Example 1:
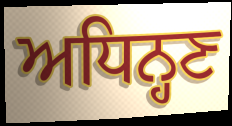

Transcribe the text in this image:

ਅਧਿਨ੍ਹਣ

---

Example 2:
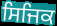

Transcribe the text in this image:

ਸਿਜਿਕ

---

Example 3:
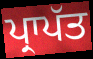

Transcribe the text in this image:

ਪ੍ਰਾਪੱਤ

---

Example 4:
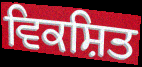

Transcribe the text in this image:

ਵਿਕਸ਼ਿਤ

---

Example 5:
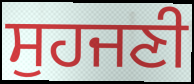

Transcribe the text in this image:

ਸੁਹਜਣੀ